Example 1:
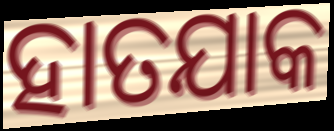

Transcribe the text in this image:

ହାତଯାକ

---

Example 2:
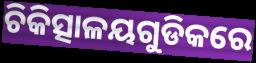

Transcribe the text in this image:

ଚିକିତ୍ସାଳୟଗୁଡିକରେ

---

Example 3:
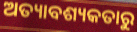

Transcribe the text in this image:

ଅତ୍ୟାବଶ୍ୟକତାରୁ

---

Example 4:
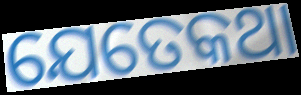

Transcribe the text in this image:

ଯେତେକଥା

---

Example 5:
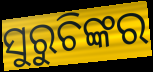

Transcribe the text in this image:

ସୁରୁଚିଙ୍କର